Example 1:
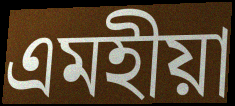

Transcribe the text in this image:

এমহীয়া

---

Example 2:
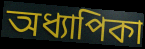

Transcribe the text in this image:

অধ্যাপিকা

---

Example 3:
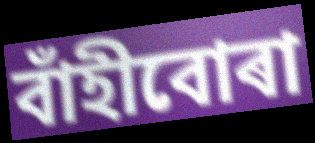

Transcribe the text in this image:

বাঁহীবোৰা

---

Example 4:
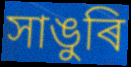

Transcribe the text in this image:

সাঙুৰি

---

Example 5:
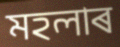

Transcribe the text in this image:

মহলাৰ